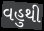
વહુથી